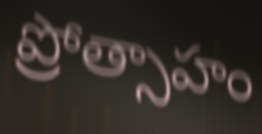
ప్రోత్సాహం